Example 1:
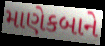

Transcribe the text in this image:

માણેકબાને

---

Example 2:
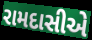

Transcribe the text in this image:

રામદાસીએ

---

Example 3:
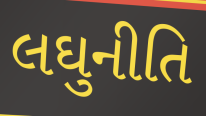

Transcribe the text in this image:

લઘુનીતિ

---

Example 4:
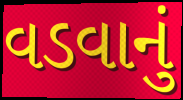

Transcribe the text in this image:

વડવાનું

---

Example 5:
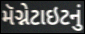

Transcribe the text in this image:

મૅગ્નેટાઇટનું